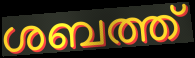
ശബത്ത്